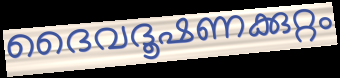
ദൈവദൂഷണക്കുറ്റം